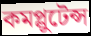
কমপ্লুটেন্স